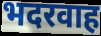
भदरवाह